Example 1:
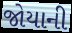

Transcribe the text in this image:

જોયાની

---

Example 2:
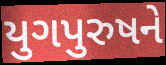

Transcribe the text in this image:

યુગપુરુષને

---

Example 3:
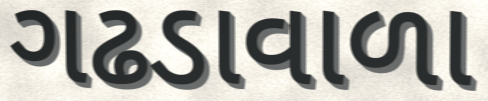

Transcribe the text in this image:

ગઢડાવાળા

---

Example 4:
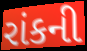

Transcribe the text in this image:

રાંકની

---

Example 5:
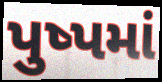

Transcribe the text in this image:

પુષ્પમાં